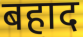
बहाद